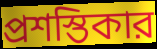
প্রশস্তিকার